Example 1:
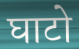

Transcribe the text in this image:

घाटो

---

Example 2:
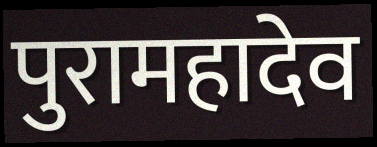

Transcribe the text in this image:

पुरामहादेव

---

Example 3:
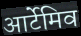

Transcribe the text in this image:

आर्टेमिव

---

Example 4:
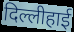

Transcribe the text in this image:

दिल्लीहाई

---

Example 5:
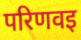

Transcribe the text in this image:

परिणवइ